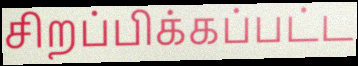
சிறப்பிக்கப்பட்ட